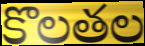
కొలతల